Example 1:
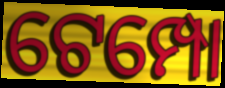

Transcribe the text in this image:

ଟେମ୍ପୋ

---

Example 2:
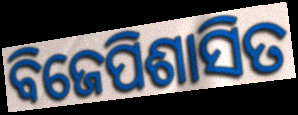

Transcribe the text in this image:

ବିଜେପିଶାସିତ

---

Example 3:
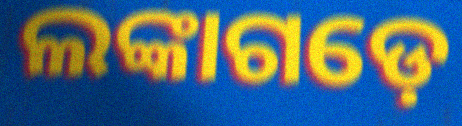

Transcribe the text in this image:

ଲଙ୍କାଗଡ଼େ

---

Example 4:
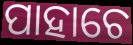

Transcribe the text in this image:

ପାହାଚେ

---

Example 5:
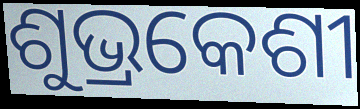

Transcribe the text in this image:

ଶୁଭ୍ରକେଶୀ